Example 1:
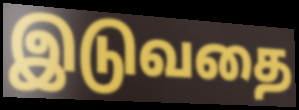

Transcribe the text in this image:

இடுவதை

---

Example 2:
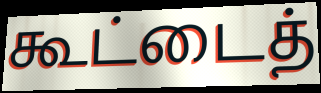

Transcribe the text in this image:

கூட்டைத்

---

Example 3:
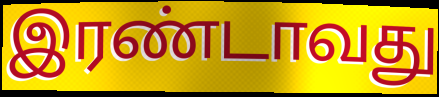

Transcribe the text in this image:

இரண்டாவது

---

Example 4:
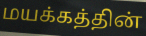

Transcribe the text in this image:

மயக்கத்தின்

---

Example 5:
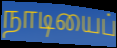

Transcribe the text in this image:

நாடியைப்